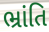
ભ્રાંતિ